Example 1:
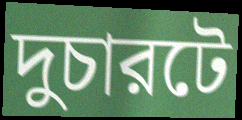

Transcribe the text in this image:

দুচারটে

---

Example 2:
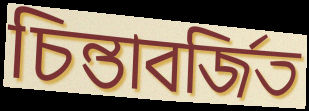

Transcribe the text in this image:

চিন্তাবর্জিত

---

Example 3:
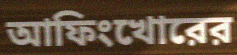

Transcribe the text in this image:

আফিংখোরের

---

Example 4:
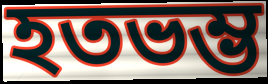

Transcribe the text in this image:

হতভম্ভ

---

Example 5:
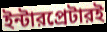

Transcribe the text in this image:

ইন্টারপ্রেটারই